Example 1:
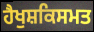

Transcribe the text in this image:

ਹੈਖੁਸ਼ਕਿਸਮਤ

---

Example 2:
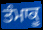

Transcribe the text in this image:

ਤੰਮਾਕੂ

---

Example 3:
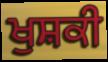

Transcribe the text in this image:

ਖੁਸ਼ਕੀ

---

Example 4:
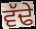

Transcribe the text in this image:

ਵੱਢੇ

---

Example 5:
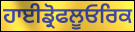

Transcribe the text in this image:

ਹਾਈਡ੍ਰੋਫਲੂਓਰਿਕ